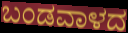
ಬಂಡವಾಳದ